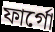
ফার্গো